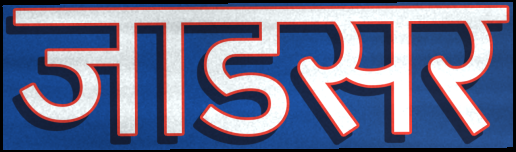
जाडसर